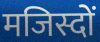
मजिस्दों